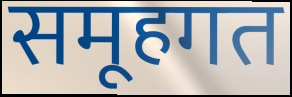
समूहगत